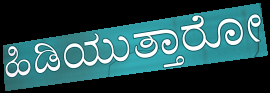
ಹಿಡಿಯುತ್ತಾರೋ